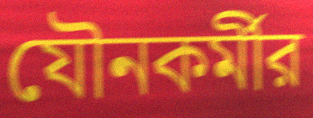
যৌনকর্মীর